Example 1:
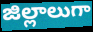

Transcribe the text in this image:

జిల్లాలుగా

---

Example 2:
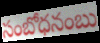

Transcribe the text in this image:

సంబోధనంబు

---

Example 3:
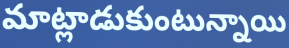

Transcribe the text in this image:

మాట్లాడుకుంటున్నాయి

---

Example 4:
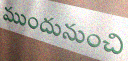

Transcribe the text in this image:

ముందునుంచి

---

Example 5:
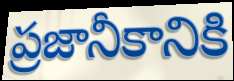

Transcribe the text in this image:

ప్రజానీకానికి